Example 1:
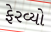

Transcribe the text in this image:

ફેરવ્યો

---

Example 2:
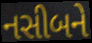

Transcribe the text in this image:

નસીબને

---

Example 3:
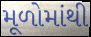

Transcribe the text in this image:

મૂળોમાંથી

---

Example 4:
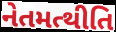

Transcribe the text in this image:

નેતમત્થીતિ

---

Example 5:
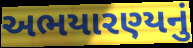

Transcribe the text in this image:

અભયારણ્યનું